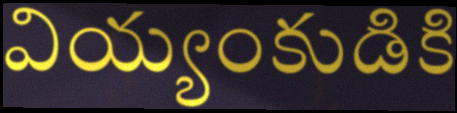
వియ్యంకుడికి